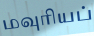
மவுரியப்